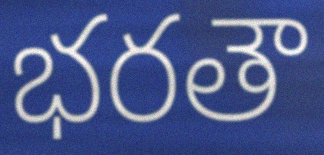
భరతౌ